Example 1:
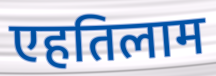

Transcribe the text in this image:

एहतिलाम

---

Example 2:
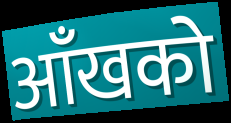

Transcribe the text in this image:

आँखको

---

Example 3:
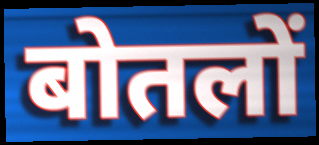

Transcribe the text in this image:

बोतलों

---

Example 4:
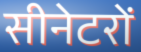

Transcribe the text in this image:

सीनेटरों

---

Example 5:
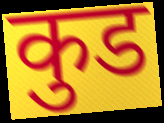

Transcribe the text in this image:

कुड